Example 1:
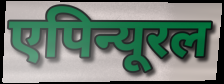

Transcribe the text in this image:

एपिन्यूरल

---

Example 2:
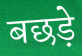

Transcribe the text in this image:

बछड़े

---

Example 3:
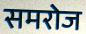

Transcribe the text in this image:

समरोज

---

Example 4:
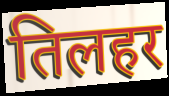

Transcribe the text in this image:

तिलहर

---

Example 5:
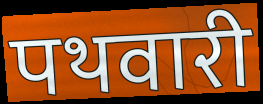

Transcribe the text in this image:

पथवारी